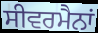
ਸੀਵਰਮੈਨਾਂ